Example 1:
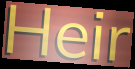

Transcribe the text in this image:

Heir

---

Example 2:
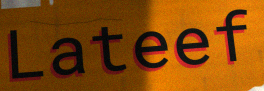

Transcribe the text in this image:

Lateef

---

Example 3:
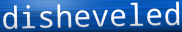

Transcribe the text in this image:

disheveled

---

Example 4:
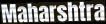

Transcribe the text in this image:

Maharshtra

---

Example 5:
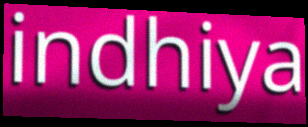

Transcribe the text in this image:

indhiya